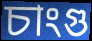
চাংগু